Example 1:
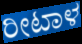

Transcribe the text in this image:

ರೀಟಾಳ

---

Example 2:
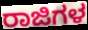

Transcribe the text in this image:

ರಾಜಿಗಳ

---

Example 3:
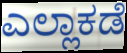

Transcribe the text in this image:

ಎಲ್ಲಾಕಡೆ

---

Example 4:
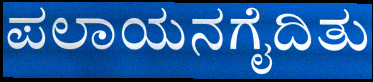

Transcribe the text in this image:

ಪಲಾಯನಗೈದಿತು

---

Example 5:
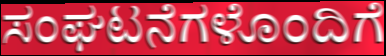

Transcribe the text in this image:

ಸಂಘಟನೆಗಳೊಂದಿಗೆ